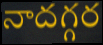
నాదగ్గర